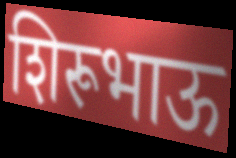
शिरूभाऊ